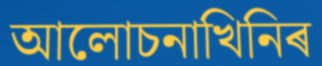
আলোচনাখিনিৰ